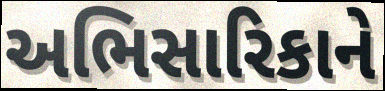
અભિસારિકાને